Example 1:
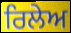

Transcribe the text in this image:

ਰਿਲੇਅ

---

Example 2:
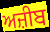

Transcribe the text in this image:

ਅਜ਼ੀਬ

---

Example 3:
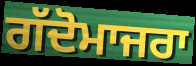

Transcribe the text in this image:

ਗੱਦੋਮਾਜਰਾ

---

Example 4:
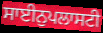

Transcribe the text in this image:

ਸਾਈਨੁਪਲਾਸਟੀ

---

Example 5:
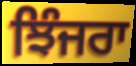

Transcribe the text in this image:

ਝਿੰਜਰਾ